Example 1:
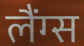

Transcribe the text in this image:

लैंग्स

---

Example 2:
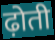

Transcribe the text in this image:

ढ़ोती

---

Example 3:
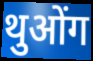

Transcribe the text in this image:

थुओंग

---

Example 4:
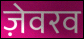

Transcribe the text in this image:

ज़ेवरव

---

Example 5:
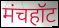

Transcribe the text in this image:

मंचहॉट